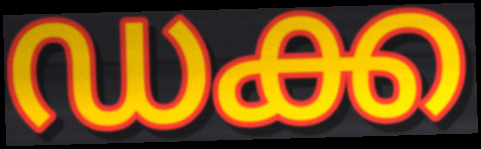
ഡക്ക